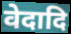
वेदादि